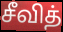
சீவித்